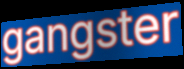
gangster